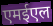
एमईएल